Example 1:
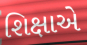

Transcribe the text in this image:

શિક્ષાએ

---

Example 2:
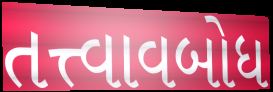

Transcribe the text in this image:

તત્ત્વાવબોધ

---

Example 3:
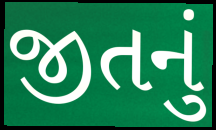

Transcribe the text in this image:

જીતનું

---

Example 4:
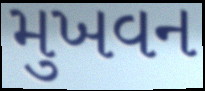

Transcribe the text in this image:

મુખવન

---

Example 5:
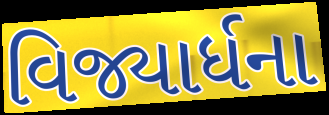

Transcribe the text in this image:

વિજ્યાર્ધના